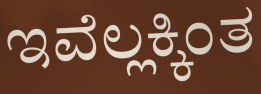
ಇವೆಲ್ಲಕ್ಕಿಂತ